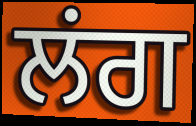
ਲਂਗ